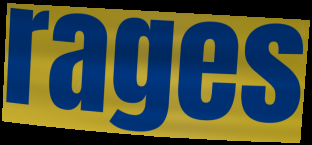
rages